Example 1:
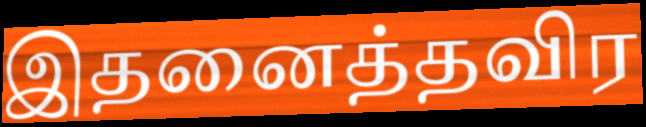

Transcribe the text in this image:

இதனைத்தவிர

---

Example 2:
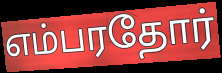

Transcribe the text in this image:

எம்பரதோர்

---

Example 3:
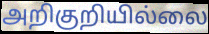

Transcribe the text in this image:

அறிகுறியில்லை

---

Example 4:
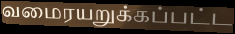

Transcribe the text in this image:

வமைரயறுக்கப்பட்ட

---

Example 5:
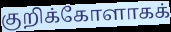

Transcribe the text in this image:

குறிக்கோளாகக்